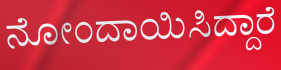
ನೋಂದಾಯಿಸಿದ್ದಾರೆ